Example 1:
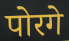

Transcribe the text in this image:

पोरगे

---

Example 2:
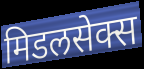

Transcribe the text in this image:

मिडलसेक्स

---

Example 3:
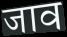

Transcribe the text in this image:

जाव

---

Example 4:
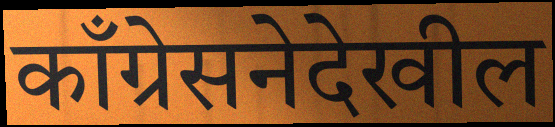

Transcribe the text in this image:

काँग्रेसनेदेखील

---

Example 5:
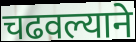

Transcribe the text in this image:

चढवल्याने